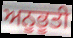
ਅਨੂਭੂਤੀ